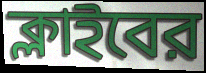
ক্লাইবের